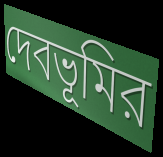
দেবভূমির